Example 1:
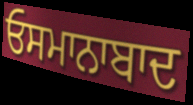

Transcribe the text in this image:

ਓਸਮਾਨਾਬਾਦ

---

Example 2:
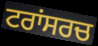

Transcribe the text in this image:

ਟਰਾਂਸਰਚ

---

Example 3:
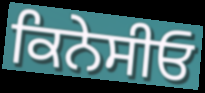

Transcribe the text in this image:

ਕਿਨੇਸੀਓ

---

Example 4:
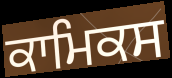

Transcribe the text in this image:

ਕਾਮਿਕਸ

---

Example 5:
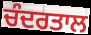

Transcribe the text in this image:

ਚੰਦਰਤਾਲ